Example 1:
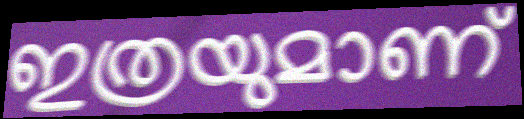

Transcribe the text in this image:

ഇത്രയുമാണ്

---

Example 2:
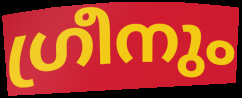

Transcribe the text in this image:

ഗ്രീനും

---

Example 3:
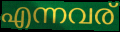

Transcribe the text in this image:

എന്നവര്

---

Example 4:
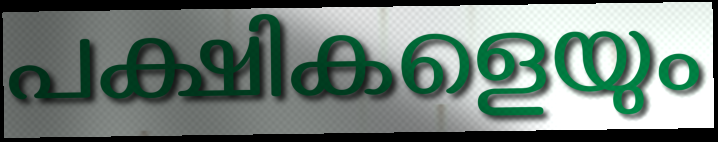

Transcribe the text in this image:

പക്ഷികളെയും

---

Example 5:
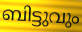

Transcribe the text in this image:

ബിട്ടുവും